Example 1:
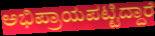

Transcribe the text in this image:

ಅಭಿಪ್ರಾಯಪಟ್ಟಿದ್ದಾರೆ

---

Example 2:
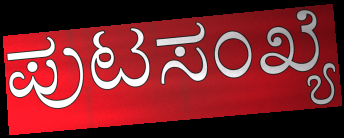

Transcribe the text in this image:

ಪುಟಸಂಖ್ಯೆ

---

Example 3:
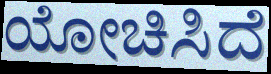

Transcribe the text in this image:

ಯೋಚಿಸಿದೆ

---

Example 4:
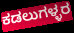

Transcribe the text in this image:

ಕಡಲುಗಳ್ಳರ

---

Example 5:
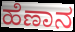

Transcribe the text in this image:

ಹೆಣಾನ